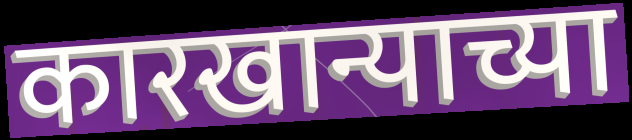
कारखान्याच्या